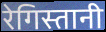
रेगिस्तानी